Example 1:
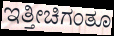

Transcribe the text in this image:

ಇತ್ತೀಚಿಗಂತೂ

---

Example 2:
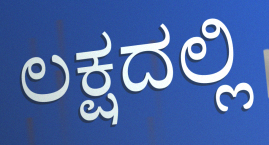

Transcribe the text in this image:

ಲಕ್ಷದಲ್ಲಿ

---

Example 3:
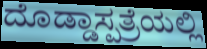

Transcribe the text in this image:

ದೊಡ್ಡಾಸ್ಪತ್ರೆಯಲ್ಲಿ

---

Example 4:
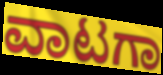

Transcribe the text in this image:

ವಾಟಗಾ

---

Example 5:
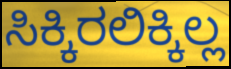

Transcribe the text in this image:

ಸಿಕ್ಕಿರಲಿಕ್ಕಿಲ್ಲ